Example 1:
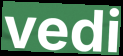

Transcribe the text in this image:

vedi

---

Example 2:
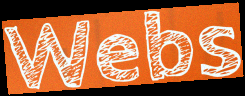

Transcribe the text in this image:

Webs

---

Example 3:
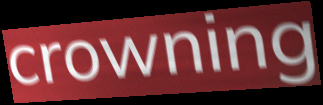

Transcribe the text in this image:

crowning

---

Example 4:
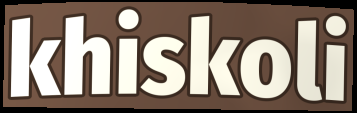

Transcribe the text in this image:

khiskoli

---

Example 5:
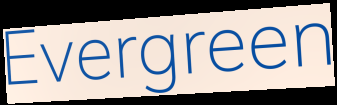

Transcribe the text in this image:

Evergreen